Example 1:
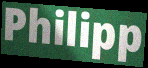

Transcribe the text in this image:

Philipp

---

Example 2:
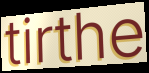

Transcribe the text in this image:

tirthe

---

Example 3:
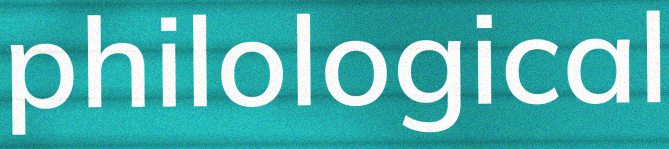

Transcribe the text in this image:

philological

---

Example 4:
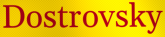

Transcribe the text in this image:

Dostrovsky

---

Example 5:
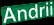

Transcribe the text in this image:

Andrii